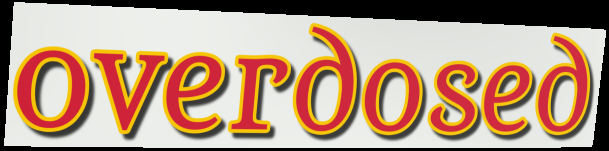
overdosed